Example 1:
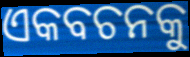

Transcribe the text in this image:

ଏକବଚନକୁ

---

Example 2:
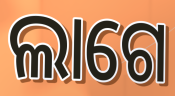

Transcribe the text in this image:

ଲାଗେ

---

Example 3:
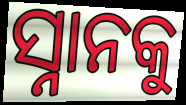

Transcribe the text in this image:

ସ୍ନାନକୁ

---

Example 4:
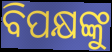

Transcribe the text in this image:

ବିପକ୍ଷଙ୍କୁ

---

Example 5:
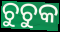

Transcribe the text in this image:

ଚୁଚୁକ